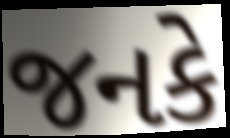
જનકે